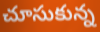
చూసుకున్న